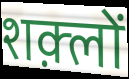
शक़्लों